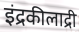
इंद्रकीलाद्री